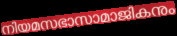
നിയമസഭാസാമാജികനും